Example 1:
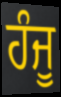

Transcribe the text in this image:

ਹੰਜੂ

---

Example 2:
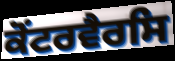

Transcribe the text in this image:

ਕੋਂਟਰਵੈਰਸਿ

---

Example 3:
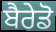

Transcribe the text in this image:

ਬੈਰੇਡੋ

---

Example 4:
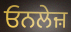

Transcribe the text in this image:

ਓਨਲੇਜ਼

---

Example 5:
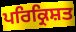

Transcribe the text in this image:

ਪਰਿਕ੍ਰਿਸ਼ਤ